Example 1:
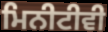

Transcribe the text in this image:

ਮਿਨੀਟੀਵੀ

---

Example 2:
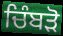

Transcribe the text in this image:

ਚਿੰਬੜੋ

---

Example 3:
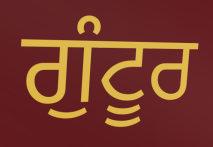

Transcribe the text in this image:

ਗੁੰਟੂਰ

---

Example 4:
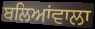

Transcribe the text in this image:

ਬਲਿਆਂਵਾਲਾ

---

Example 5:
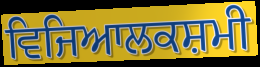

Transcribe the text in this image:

ਵਿਜਿਆਲਕਸ਼ਮੀ